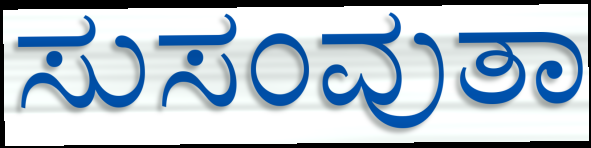
ಸುಸಂವುತಾ